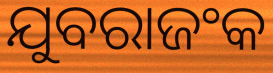
ଯୁବରାଜଂକ